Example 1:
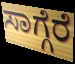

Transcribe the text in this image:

ಸಾಗ್ಗೆರೆ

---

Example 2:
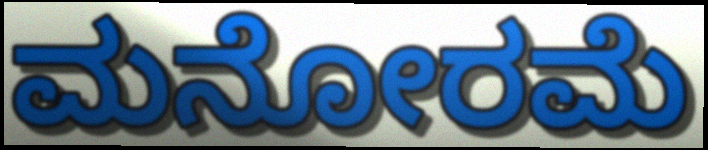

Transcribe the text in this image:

ಮನೋರಮೆ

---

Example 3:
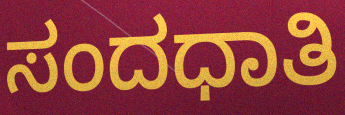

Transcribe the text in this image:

ಸಂದಧಾತಿ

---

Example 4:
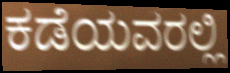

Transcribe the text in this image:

ಕಡೆಯವರಲ್ಲಿ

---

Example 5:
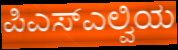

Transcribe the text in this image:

ಪಿಎಸ್ಎಲ್ವಿಯ